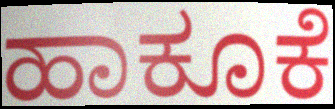
ಹಾಕೂಕೆ